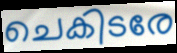
ചെകിടരേ